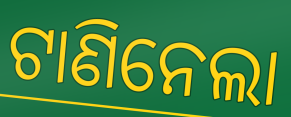
ଟାଣିନେଲା